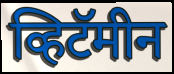
व्हिटॅमीन